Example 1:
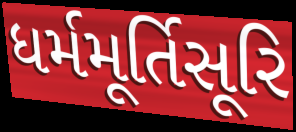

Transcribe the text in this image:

ધર્મમૂર્તિસૂરિ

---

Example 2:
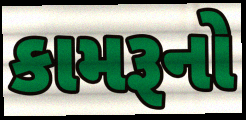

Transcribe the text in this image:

કામરૂનો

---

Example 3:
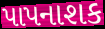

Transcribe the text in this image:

પાપનાશક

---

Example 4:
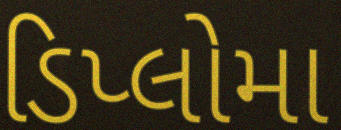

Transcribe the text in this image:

ડિપ્લોમા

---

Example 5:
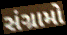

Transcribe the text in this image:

સંગ્રામો